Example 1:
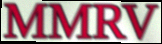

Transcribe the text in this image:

MMRV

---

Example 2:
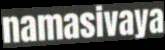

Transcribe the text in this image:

namasivaya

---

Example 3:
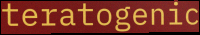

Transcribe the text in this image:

teratogenic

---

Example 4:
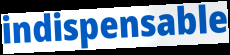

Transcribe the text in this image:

indispensable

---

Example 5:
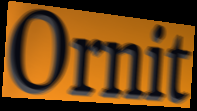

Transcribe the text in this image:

Ornit